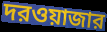
দরওয়াজার